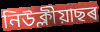
নিউক্লীয়াছৰ